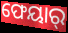
ଫେୟାର୍